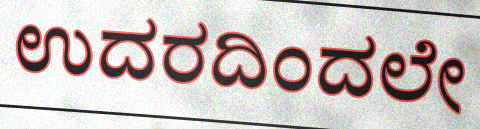
ಉದರದಿಂದಲೇ